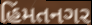
હિંમતનગર